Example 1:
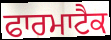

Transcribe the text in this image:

ਫਾਰਮਾਟੈਕ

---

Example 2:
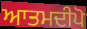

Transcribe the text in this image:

ਆਤਮਦੀਪੋ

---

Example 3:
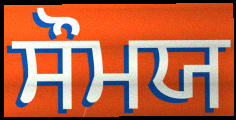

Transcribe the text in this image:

ਸੌਮਯ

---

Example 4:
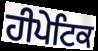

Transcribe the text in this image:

ਹੀਪੇਟਿਕ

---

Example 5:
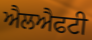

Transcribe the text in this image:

ਐਲਐਫਟੀ